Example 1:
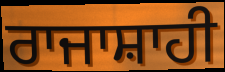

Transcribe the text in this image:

ਰਾਜਾਸ਼ਾਹੀ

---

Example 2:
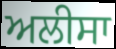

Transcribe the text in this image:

ਅਲੀਸਾ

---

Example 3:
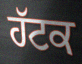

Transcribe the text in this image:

ਹੱਟਕ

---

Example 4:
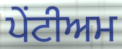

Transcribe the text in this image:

ਪੇਂਟੀਅਮ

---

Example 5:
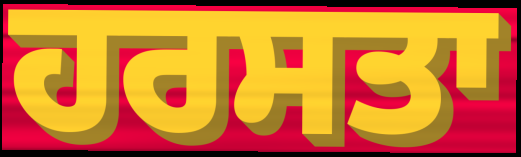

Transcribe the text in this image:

ਹਰਸਤਾ